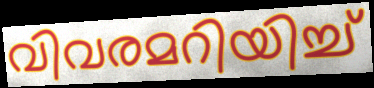
വിവരമറിയിച്ച്